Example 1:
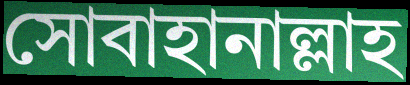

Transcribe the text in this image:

সোবাহানাল্লাহ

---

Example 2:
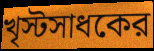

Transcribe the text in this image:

খৃস্টসাধকের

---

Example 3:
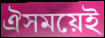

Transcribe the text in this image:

ঐসময়েই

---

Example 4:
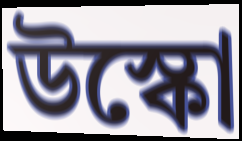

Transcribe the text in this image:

উস্কো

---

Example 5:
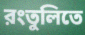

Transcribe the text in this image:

রংতুলিতে